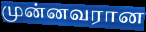
முன்னவரான